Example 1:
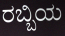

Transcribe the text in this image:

ರಬ್ಬಿಯ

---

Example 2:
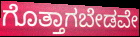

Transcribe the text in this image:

ಗೊತ್ತಾಗಬೇಡವೇ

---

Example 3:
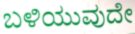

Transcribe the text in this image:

ಬಳಿಯುವುದೇ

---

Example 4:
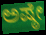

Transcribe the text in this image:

ಅಷ್ಠೇ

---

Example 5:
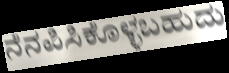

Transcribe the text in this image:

ನೆನಪಿಸಿಕೊಳ್ಳಬಹುದು